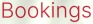
Bookings